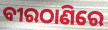
ବୀରଠାଣିରେ